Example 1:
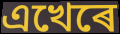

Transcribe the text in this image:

এখেৰে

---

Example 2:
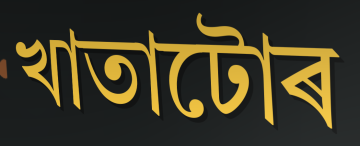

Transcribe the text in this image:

খাতাটোৰ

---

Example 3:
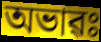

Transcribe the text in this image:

অভাৱঃ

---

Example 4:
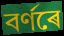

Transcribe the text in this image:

বৰ্ণৰে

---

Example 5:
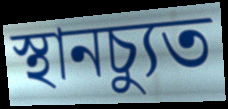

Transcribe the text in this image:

স্থানচ্যুত